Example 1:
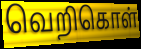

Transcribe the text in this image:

வெறிகொள்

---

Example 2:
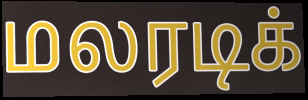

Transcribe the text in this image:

மலரடிக்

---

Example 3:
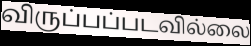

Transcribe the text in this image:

விருப்பப்படவில்லை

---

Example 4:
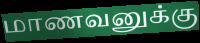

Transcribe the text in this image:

மாணவனுக்கு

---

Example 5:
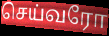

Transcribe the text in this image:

செய்வரோ